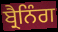
ਬ੍ਰੈਨਿੰਗ